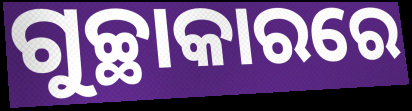
ଗୁଚ୍ଛାକାରରେ